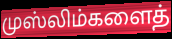
முஸ்லிம்களைத்